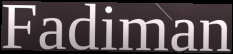
Fadiman